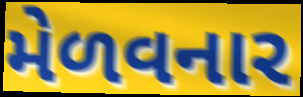
મેળવનાર